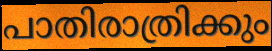
പാതിരാത്രിക്കും